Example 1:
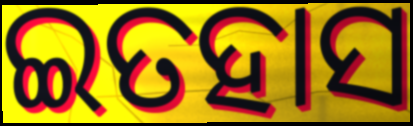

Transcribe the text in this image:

ଇତହାସ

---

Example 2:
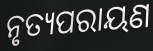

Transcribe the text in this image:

ନୃତ୍ୟପରାୟଣ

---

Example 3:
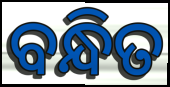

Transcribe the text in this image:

ବନ୍ଧିତ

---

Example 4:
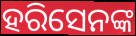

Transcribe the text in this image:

ହରିସେନଙ୍କ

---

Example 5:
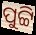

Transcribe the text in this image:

ପୁଟ୍ଟି